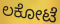
ಲಕೋಟೆ